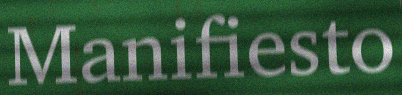
Manifiesto